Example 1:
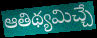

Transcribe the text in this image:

ఆతిథ్యమిచ్చే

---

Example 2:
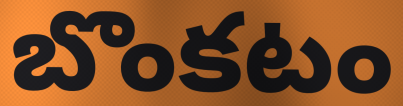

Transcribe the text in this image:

బొంకటం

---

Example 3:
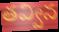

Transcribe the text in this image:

తవ్విన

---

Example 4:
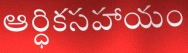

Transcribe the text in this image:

ఆర్ధికసహాయం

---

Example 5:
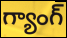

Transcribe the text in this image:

గ్యాంగ్